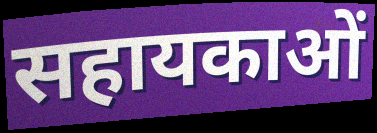
सहायकाओं